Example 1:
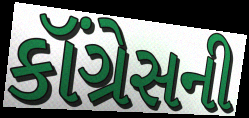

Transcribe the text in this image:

કૉંગ્રેસની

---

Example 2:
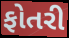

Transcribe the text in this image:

ફોતરી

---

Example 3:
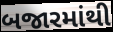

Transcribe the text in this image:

બજારમાંથી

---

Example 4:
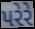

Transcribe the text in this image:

પરેરે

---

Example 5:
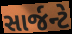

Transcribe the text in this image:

સાર્જન્ટે